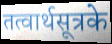
तत्वार्थसूत्रके